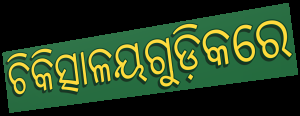
ଚିକିତ୍ସାଳୟଗୁଡ଼ିକରେ